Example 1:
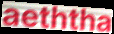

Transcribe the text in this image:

aeththa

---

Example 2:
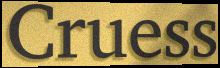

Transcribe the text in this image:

Cruess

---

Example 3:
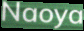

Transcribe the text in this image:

Naoya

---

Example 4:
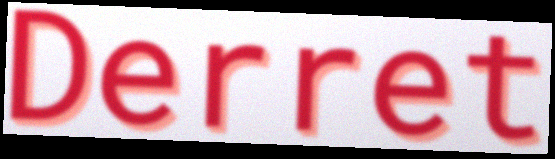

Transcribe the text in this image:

Derret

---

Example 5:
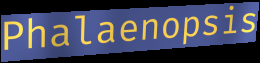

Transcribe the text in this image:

Phalaenopsis